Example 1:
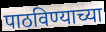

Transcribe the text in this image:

पाठविण्याच्या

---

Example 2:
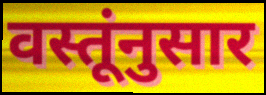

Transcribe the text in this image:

वस्तूंनुसार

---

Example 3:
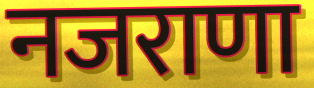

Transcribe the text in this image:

नजराणा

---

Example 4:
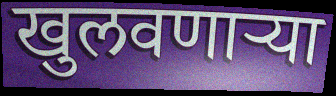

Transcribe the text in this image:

खुलवणाऱ्या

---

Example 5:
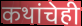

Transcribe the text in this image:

कथांचेही